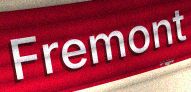
Fremont